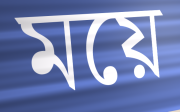
ময়ে